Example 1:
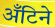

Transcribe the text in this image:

अँटिने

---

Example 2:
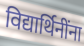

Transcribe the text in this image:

विद्यार्थिनींना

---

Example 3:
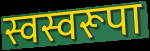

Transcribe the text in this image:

स्वस्वरूपा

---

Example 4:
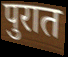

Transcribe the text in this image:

पुरात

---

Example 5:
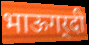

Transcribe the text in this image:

भाऊगर्दी